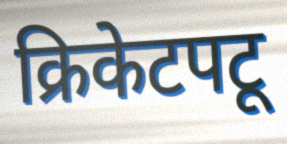
क्रिकेटपटू